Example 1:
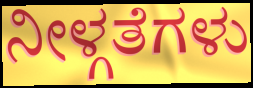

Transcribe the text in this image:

ನೀಳ್ಗತೆಗಳು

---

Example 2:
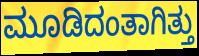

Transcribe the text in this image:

ಮೂಡಿದಂತಾಗಿತ್ತು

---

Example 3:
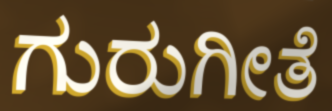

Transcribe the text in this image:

ಗುರುಗೀತೆ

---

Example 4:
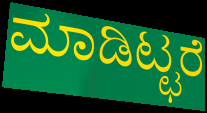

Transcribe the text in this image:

ಮಾಡಿಟ್ಟರೆ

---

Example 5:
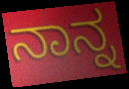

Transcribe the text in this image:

ನಾನ್ನ